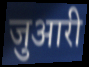
जुआरी